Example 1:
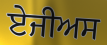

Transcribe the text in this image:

ਏਜੀਅਸ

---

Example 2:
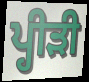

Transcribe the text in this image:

ਪ੍ਹੀੜੀ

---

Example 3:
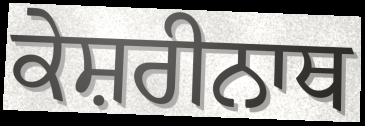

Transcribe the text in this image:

ਕੇਸ਼ਰੀਨਾਥ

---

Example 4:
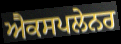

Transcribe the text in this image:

ਐਕਸਪਲੇਨਰ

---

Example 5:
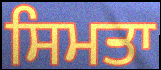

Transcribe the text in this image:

ਸਿਮਤਾ